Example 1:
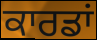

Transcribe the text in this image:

ਕਾਰਡਾਂ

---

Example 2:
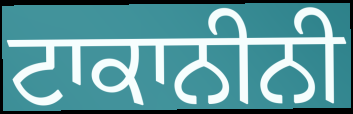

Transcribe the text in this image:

ਟਾਕਾਨੀਨੀ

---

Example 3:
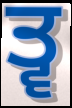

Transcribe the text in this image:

ਤ੍ਵ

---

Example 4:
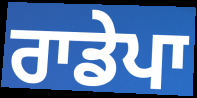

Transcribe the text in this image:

ਰਾਡੇਪਾ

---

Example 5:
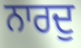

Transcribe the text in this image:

ਨਾਰਦੁ